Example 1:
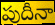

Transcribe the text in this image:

పుదీనా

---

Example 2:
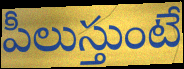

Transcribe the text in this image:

పీలుస్తుంటే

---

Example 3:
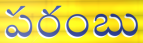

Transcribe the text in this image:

పరంబు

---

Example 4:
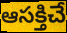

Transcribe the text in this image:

ఆసక్తిచే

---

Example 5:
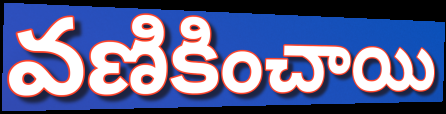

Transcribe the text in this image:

వణికించాయి